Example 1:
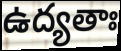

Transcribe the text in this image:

ఉద్యతాః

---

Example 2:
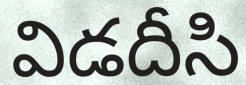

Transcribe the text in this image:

విడదీసి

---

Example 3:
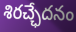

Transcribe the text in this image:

శిరచ్ఛేదనం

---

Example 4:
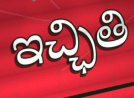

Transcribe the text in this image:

ఇచ్ఛితి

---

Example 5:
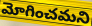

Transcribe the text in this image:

మోగించమని